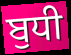
ਬੁਧੀ